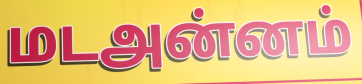
மடஅன்னம்